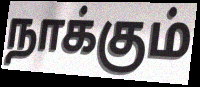
நாக்கும்